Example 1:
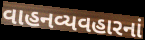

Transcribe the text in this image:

વાહનવ્યવહારનાં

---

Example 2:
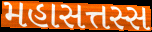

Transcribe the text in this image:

મહાસત્તસ્સ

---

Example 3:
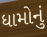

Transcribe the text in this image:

ધામોનું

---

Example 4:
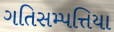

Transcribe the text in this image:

ગતિસમ્પત્તિયા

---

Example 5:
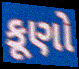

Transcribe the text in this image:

કૂણો